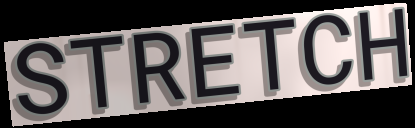
STRETCH